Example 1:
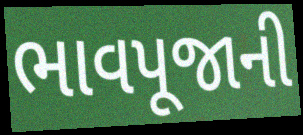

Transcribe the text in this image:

ભાવપૂજાની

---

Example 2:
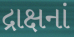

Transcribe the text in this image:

દ્રાક્ષનાં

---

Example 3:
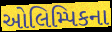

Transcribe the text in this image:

ઓલિમ્પિકના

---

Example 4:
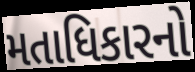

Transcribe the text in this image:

મતાધિકારનો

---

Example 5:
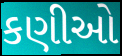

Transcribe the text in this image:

કણીઓ